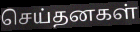
செய்தனகள்